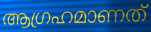
ആഗ്രഹമാണത്